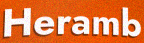
Heramb